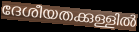
ദേശീയതക്കുള്ളിൽ